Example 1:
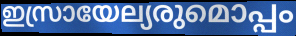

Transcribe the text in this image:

ഇസ്രായേല്യരുമൊപ്പം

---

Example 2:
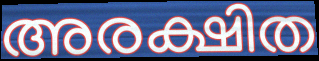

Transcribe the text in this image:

അരക്ഷിത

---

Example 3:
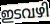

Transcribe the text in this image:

ഇടവഴി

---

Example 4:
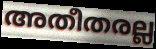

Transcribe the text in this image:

അതീതരല്ല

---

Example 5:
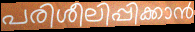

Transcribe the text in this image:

പരിശീലിപ്പിക്കാൻ